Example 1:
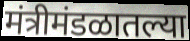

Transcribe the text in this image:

मंत्रीमंडळातल्या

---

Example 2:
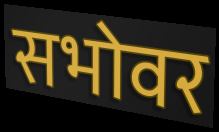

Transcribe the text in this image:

सभोवर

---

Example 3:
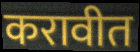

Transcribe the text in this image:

करावीत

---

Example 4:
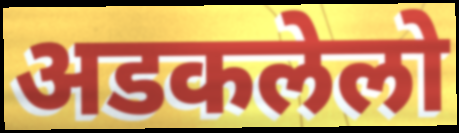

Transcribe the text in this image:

अडकलेलो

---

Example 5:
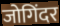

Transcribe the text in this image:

जोगिंदर